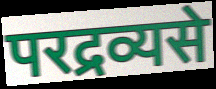
परद्रव्यसे